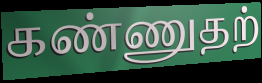
கண்ணுதற்